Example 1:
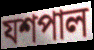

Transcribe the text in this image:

যশপাল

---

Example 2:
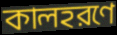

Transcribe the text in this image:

কালহরণে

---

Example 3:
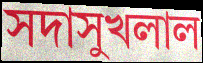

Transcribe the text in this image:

সদাসুখলাল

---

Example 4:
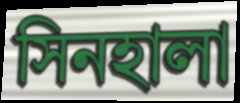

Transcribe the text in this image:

সিনহালা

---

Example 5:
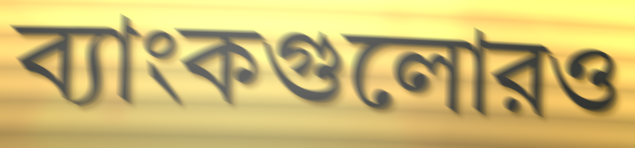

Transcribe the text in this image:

ব্যাংকগুলোরও